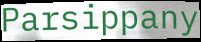
Parsippany